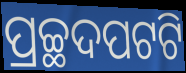
ପ୍ରଚ୍ଛଦପଟଟି